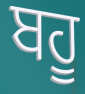
ਬਹੂ